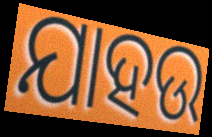
ଯାହଉ